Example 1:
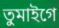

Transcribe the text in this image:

তুমাইগে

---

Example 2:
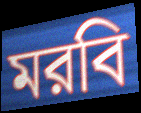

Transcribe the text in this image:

মরবি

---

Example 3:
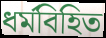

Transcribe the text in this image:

ধর্মবিহিত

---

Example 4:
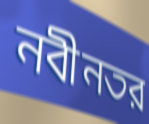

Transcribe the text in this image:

নবীনতর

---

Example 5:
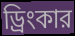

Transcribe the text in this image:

ড্রিংকার